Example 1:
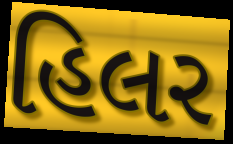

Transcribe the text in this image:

હિલર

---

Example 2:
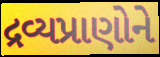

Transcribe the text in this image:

દ્રવ્યપ્રાણોને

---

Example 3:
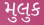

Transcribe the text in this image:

મુલુક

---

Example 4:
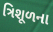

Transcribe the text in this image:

ત્રિશૂળના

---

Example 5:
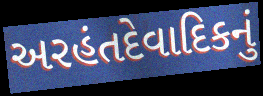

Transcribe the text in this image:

અરહંતદેવાદિકનું